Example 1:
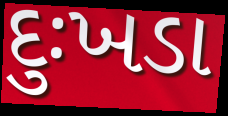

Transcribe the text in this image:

દુઃખડા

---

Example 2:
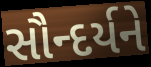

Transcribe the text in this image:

સૌન્દર્યને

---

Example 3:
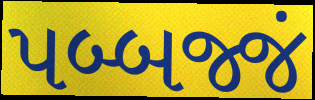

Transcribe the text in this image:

પબ્બજ્જં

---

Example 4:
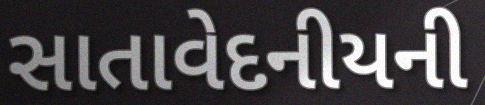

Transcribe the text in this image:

સાતાવેદનીયની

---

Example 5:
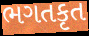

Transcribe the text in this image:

ભગતકૃત